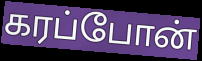
கரப்போன்